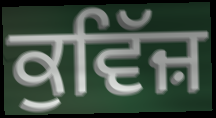
ਕੁਵਿੱਜ਼